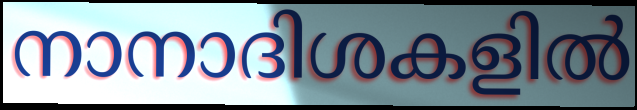
നാനാദിശകളിൽ